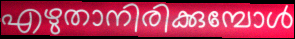
എഴുതാനിരിക്കുമ്പോൾ